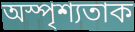
অস্পৃশ্যতাক